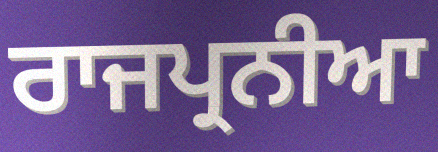
ਰਾਜਪ੍ਰਨੀਆ